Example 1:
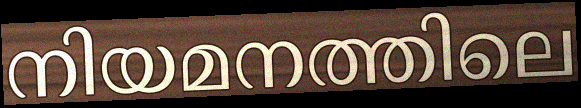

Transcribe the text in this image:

നിയമനത്തിലെ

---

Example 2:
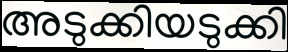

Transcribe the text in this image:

അടുക്കിയടുക്കി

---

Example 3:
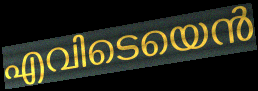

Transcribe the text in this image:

എവിടെയെൻ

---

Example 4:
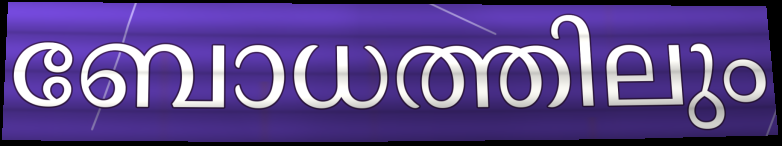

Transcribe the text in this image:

ബോധത്തിലും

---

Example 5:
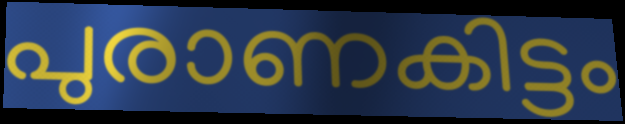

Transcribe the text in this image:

പുരാണകിട്ടം